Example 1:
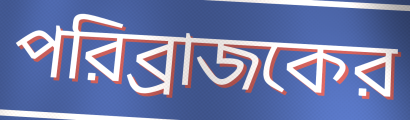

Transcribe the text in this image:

পরিব্রাজকের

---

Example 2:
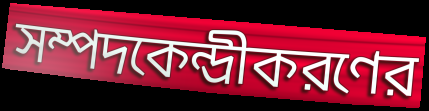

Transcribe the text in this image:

সম্পদকেন্দ্রীকরণের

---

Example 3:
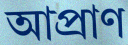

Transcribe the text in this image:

আপ্রাণ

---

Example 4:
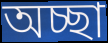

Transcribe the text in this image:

অচ্ছা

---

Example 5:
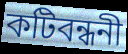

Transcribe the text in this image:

কটিবন্ধনী